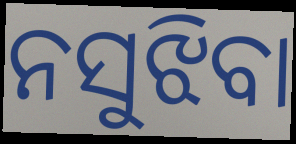
ନସୁଝିବା